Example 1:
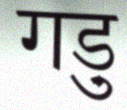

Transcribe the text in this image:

गड़ु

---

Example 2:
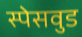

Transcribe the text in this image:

स्पेसवुड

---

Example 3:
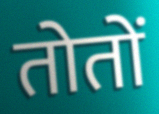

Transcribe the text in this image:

तोतों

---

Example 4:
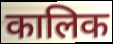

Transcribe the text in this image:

कालिक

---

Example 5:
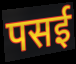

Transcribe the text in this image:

पसई